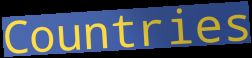
Countries